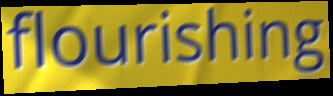
flourishing